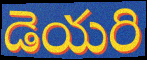
డెయరి